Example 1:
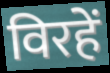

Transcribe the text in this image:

विरहें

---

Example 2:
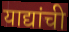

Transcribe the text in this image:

याद्यांची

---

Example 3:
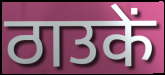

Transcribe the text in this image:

ठाउकें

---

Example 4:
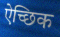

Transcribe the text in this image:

ऐच्छिक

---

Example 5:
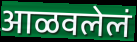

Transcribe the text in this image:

आळवलेलं